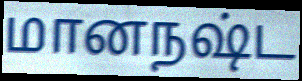
மானநஷ்ட